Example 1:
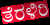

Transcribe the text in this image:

ತೆರಳಿರಿ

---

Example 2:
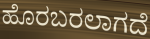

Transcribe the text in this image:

ಹೊರಬರಲಾಗದೆ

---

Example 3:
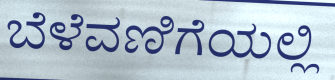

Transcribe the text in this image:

ಬೆಳೆವಣಿಗೆಯಲ್ಲಿ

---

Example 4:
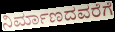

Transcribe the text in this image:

ನಿರ್ಮಾಣದವರೆಗೆ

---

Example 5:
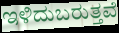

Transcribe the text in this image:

ಇಳಿದುಬರುತ್ತವೆ